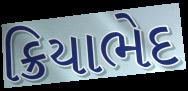
ક્રિયાભેદ